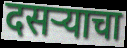
दसऱ्याचा